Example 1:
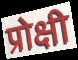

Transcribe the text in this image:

प्रोक्षी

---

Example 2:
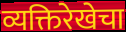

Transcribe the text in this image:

व्यक्तिरेखेचा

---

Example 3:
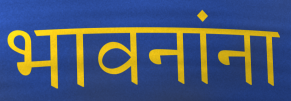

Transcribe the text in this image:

भावनांना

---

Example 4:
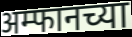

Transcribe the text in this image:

अम्फानच्या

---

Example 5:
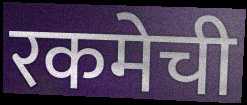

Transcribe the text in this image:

रकमेची